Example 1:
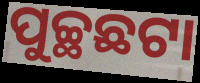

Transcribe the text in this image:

ପୁଚ୍ଛଛଟା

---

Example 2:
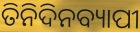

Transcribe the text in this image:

ତିନିଦିନବ୍ୟାପୀ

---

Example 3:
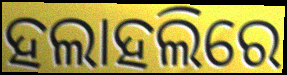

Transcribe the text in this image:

ହଲାହଲିରେ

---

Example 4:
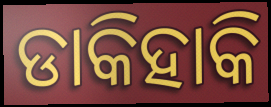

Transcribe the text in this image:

ଡାକିହାକି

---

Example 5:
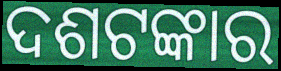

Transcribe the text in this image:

ଦଶଟଙ୍କାର